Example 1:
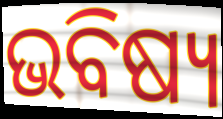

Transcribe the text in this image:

ଭବିଷ୍ଯ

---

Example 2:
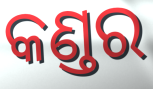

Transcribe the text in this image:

କଣ୍ଡର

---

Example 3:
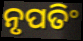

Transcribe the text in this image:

ନୃପତିଂ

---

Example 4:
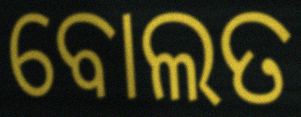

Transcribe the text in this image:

ବୋଲତ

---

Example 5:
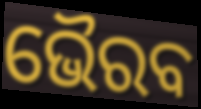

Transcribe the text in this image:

ଭୈରବ